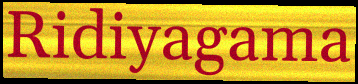
Ridiyagama